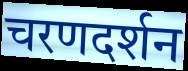
चरणदर्शन